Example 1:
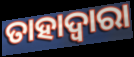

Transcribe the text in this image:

ତାହାଦ୍ୱାରା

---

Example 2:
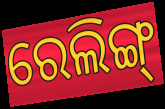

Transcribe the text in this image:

ରେଲିଙ୍ଗ୍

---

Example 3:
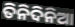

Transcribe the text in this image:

ତିନିଦିନିଆ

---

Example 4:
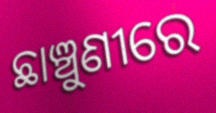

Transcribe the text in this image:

ଛାଞ୍ଚୁଣୀରେ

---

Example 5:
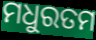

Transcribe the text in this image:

ମଧୁରତମ